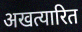
अखत्यारित